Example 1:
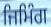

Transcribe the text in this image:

ਜਿਮਿੰਗ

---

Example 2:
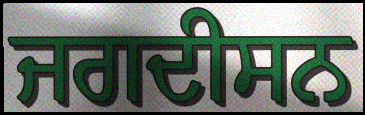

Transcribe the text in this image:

ਜਗਦੀਸਨ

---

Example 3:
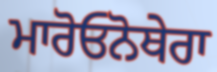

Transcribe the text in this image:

ਮਾਰੋਓਨੋਥੇਰਾ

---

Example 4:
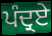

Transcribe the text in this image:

ਪੰਦ੍ਰਏ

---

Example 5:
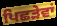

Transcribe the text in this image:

ਪਿਛੜੇਵਾਂ